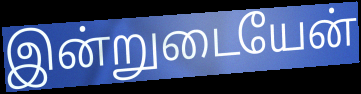
இன்றுடையேன்